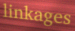
linkages